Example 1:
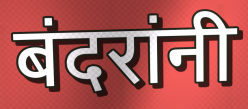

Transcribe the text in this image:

बंदरांनी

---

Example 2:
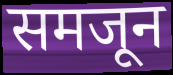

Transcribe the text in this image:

समजून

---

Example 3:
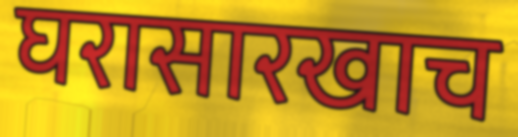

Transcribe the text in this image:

घरासारखाच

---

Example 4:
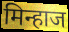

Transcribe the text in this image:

मिन्हाज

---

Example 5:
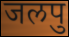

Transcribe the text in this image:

जलपु